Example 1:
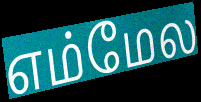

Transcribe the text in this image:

எம்மேல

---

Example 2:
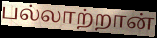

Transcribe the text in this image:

பல்லாற்றான்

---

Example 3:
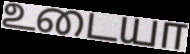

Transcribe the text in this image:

உடையா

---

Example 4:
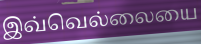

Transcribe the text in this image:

இவ்வெல்லையை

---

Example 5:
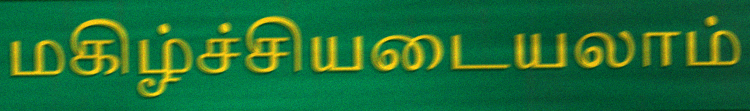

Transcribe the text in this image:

மகிழ்ச்சியடையலாம்